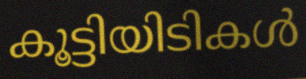
കൂട്ടിയിടികൾ